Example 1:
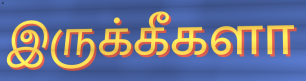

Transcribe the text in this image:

இருக்கீகளா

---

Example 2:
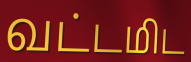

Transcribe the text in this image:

வட்டமிட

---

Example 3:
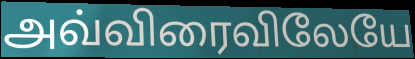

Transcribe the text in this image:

அவ்விரைவிலேயே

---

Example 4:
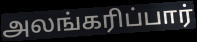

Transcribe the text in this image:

அலங்கரிப்பார்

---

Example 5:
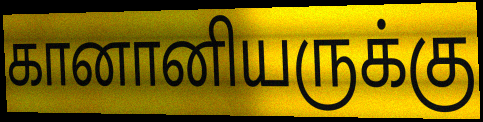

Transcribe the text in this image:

கானானியருக்கு